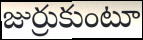
జుర్రుకుంటూ